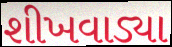
શીખવાડ્યા